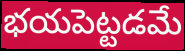
భయపెట్టడమే